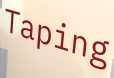
Taping